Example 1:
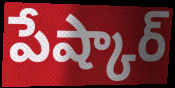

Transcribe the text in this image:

పేష్కార్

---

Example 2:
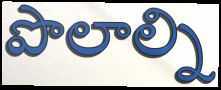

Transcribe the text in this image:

పొలాల్ని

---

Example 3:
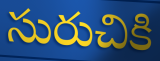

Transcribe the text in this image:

సురుచికి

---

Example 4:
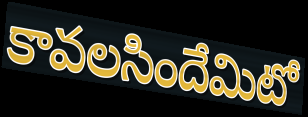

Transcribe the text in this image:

కావలసిందేమిటో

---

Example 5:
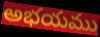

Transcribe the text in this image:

అభయము